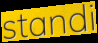
standi